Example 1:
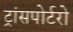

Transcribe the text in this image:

ट्रांसपोर्टरो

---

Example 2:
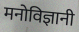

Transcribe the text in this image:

मनोविज्ञानी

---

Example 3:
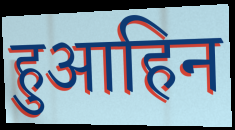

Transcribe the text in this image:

हुआहिन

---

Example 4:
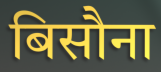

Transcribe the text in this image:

बिसौना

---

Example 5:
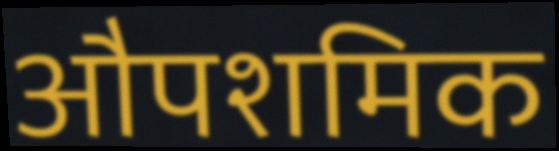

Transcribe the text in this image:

औपशमिक